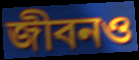
জীবনও